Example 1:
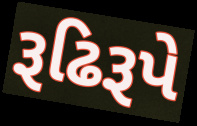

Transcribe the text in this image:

રૂઢિરૂપે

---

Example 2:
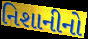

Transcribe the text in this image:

નિશાનીનો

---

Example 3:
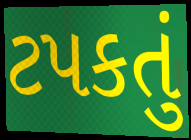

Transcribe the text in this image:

ટપકતું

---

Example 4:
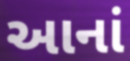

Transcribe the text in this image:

આનાં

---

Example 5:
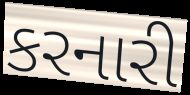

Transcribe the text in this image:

કરનારી